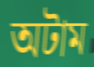
অটাম